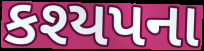
કશ્યપના